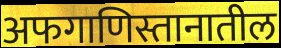
अफगाणिस्तानातील